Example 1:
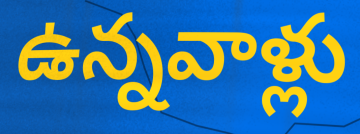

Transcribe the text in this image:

ఉన్నవాళ్లు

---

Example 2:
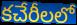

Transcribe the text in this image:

కచేరీలలో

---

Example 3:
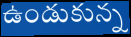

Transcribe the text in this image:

ఉండుకున్న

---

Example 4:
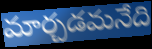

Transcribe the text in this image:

మార్చడమనేది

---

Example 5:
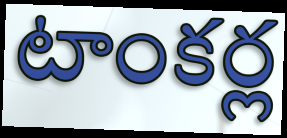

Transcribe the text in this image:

టాంకర్ల